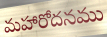
మహారోదనము